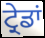
ਟ੍ਰੇਡਾਂ